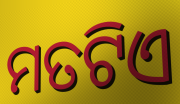
ମତଟିଏ